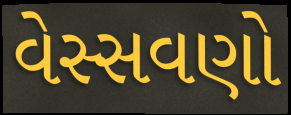
વેસ્સવણો